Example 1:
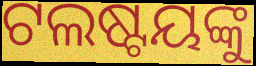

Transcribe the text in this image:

ଟଲଷ୍ଟୟଙ୍କୁ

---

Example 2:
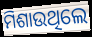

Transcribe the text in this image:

ମିଶାଉଥିଲେ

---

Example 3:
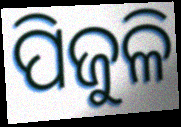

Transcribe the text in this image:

ପିଜୁଳି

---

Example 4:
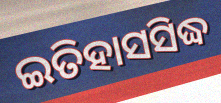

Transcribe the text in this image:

ଇତିହାସସିଦ୍ଧ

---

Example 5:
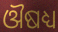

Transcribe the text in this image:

ଔଷଧ୍ୟ